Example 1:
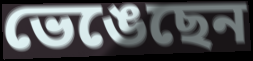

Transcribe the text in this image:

ভেঙেছেন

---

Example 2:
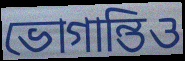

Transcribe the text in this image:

ভোগান্তিও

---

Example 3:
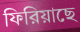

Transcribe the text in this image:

ফিরিয়াছে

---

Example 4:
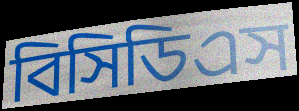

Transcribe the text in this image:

বিসিডিএস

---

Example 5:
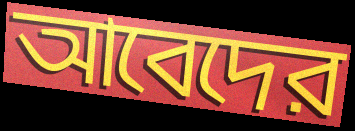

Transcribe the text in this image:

আবেদের